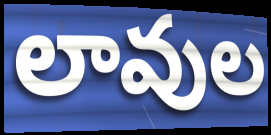
లావుల